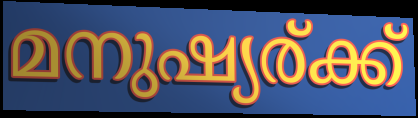
മനുഷ്യര്ക്ക്